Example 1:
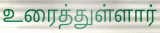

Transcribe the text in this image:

உரைத்துள்ளார்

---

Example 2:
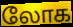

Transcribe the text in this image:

லோக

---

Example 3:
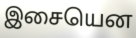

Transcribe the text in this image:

இசையென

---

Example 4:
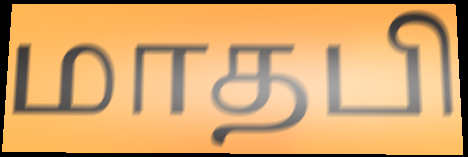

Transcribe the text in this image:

மாதபி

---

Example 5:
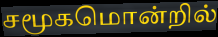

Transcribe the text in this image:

சமூகமொன்றில்